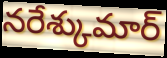
నరేశ్కుమార్